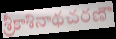
శ్రీకాశినాథచరణౌ